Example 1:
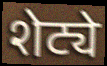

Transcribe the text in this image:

शेट्ये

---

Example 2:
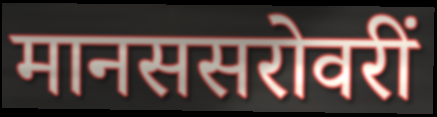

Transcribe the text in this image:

मानससरोवरीं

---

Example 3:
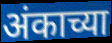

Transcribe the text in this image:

अंकाच्या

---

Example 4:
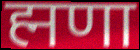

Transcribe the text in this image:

ह्मणा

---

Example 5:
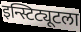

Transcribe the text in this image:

इन्स्टिट्यूटला